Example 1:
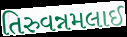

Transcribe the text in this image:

તિરુવન્નમલાઈ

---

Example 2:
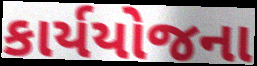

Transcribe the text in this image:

કાર્યયોજના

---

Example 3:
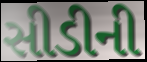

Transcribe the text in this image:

સીડીની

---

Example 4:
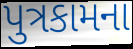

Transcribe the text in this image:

પુત્રકામના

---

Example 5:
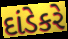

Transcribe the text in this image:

દાંડેકરે